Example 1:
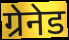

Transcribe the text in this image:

ग्रेनेड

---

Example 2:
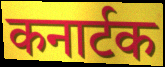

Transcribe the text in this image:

कनार्टक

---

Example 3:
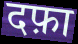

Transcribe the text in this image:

दफ़ा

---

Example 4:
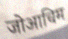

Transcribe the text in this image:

जोआचिम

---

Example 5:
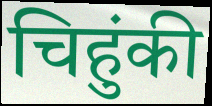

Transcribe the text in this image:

चिहुंकी